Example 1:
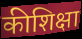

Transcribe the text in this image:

कीशिक्षा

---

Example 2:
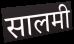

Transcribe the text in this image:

सालमी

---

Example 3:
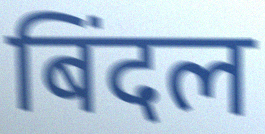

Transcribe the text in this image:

बिंदल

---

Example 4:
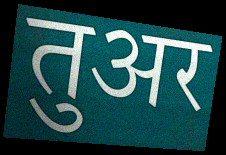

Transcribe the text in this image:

तुअर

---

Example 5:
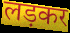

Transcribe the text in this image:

लड़कर